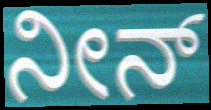
ನೀನ್